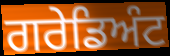
ਗਰੇਡਿਅੰਟ